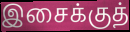
இசைக்குத்